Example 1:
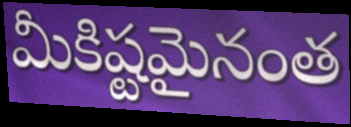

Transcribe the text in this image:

మీకిష్టమైనంత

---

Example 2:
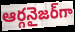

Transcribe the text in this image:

ఆర్గనైజర్‌గా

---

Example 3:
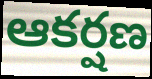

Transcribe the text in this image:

ఆకర్షణ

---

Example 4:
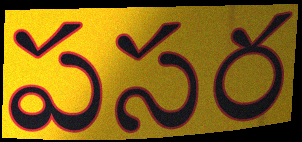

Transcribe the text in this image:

పసర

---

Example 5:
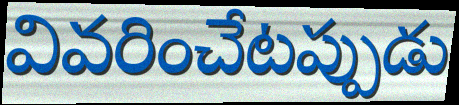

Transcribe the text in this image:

వివరించేటప్పుడు